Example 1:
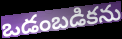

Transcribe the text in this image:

ఒడంబడికను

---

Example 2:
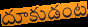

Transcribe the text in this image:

దూకుడంట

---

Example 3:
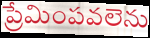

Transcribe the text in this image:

ప్రేమింపవలెను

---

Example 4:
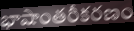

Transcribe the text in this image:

భాషాంతరీకరణం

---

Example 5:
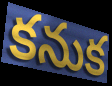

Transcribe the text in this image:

కనుక